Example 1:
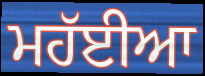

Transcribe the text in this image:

ਮਹੱਈਆ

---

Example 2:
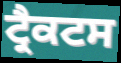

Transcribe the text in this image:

ਟ੍ਰੈਕਟਸ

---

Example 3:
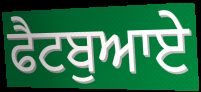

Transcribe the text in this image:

ਫੈਟਬੁਆਏ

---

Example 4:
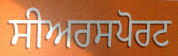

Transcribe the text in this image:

ਸੀਅਰਸਪੋਰਟ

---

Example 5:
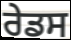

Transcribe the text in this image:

ਰੇਡਸ